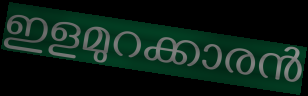
ഇളമുറക്കാരൻ